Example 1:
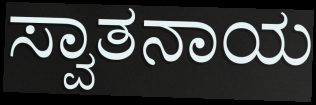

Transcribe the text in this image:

ಸ್ವಾತನಾಯ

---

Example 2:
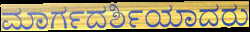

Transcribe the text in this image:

ಮಾರ್ಗದರ್ಶಿಯಾದರು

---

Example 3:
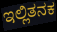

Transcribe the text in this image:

ಇಲ್ಲಿತನಕ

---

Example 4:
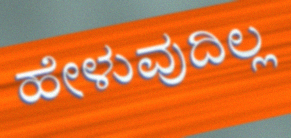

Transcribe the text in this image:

ಹೇಳುವುದಿಲ್ಲ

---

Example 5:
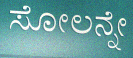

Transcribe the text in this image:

ಸೋಲನ್ನೇ